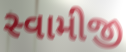
સ્વામીજી